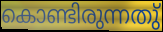
കൊണ്ടിരുന്നതു്